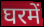
घरमें